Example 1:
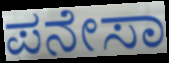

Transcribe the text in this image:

ಪನೇಸಾ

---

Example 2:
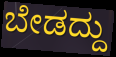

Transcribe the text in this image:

ಬೇಡದ್ದು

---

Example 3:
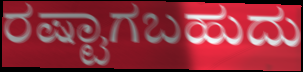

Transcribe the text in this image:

ರಷ್ಟಾಗಬಹುದು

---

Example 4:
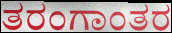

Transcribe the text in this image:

ತರಂಗಾಂತರ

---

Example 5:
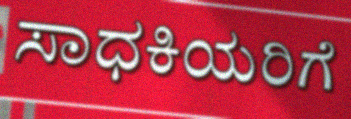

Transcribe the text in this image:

ಸಾಧಕಿಯರಿಗೆ